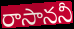
రాసాననీ